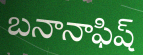
బనానాఫిష్